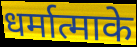
धर्मात्माके